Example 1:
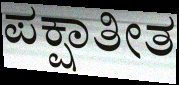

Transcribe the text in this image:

ಪಕ್ಷಾತೀತ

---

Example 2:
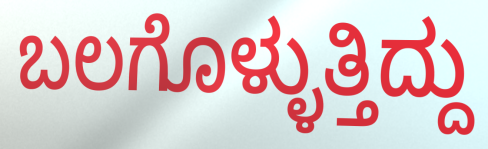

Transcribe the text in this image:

ಬಲಗೊಳ್ಳುತ್ತಿದ್ದು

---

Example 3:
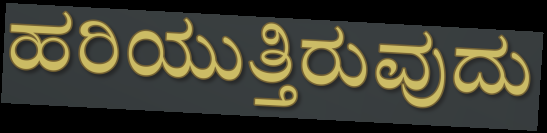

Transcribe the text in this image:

ಹರಿಯುತ್ತಿರುವುದು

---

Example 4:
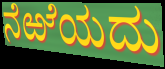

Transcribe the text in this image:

ನೆಱೆಯದು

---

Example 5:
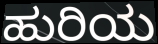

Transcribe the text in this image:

ಹುರಿಯ